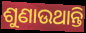
ଶୁଣାଉଥାନ୍ତି